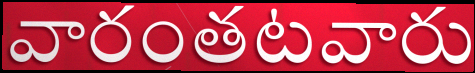
వారంతటవారు